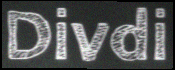
Divdi